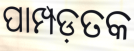
ପାମ୍ପଡ଼ତକ